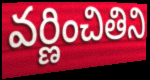
వర్ణించితిని